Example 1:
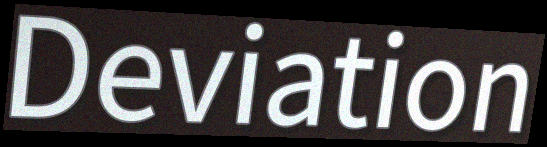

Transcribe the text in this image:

Deviation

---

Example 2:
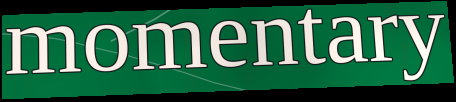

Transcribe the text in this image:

momentary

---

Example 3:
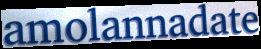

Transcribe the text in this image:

amolannadate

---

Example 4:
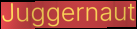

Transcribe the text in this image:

Juggernaut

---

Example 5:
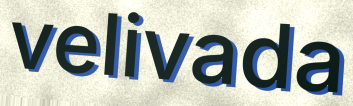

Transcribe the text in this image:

velivada